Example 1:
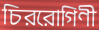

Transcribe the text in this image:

চিররোগিণী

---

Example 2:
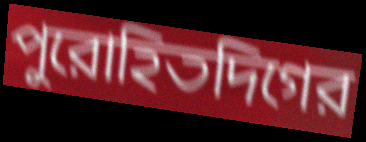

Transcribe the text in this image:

পুরোহিতদিগের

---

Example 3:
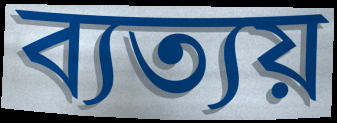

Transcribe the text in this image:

ব্যত্যয়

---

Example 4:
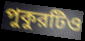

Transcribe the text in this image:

পুকুরটিও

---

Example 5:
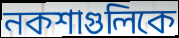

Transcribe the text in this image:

নকশাগুলিকে